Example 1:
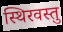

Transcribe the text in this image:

स्थिरवस्तु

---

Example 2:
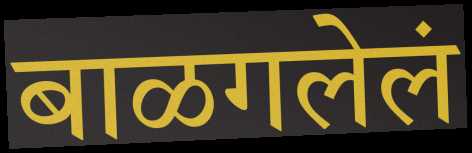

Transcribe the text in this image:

बाळगलेलं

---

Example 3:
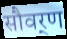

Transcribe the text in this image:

सौवर्ण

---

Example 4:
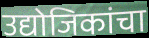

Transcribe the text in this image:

उद्योजिकांचा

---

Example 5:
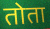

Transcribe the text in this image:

तोता